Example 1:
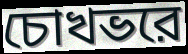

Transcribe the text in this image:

চোখভরে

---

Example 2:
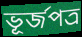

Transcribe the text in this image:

ভূর্জপত্র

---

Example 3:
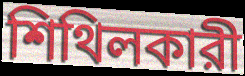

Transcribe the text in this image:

শিথিলকারী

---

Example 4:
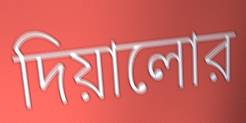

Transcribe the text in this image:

দিয়ালোর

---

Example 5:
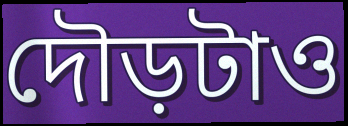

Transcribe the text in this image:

দৌড়টাও